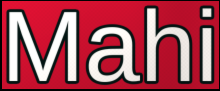
Mahi